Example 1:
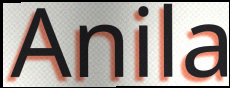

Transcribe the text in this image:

Anila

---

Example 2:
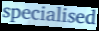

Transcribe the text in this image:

specialised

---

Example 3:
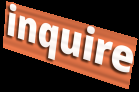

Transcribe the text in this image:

inquire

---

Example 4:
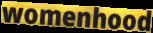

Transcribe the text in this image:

womenhood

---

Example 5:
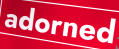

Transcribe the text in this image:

adorned